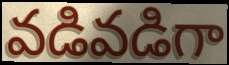
వడివడిగా